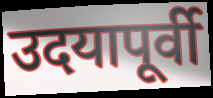
उदयापूर्वी